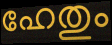
ഹേതും